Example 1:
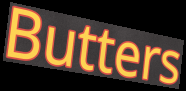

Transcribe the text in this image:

Butters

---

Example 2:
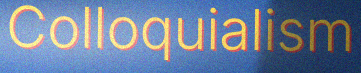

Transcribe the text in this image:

Colloquialism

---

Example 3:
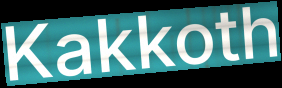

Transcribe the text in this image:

Kakkoth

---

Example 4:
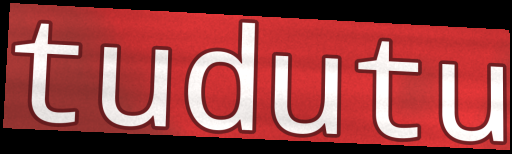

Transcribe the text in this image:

tudutu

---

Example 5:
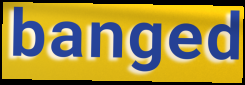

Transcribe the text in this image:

banged